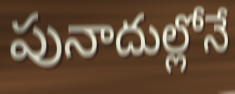
పునాదుల్లోనే